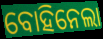
ବୋହିନେଲା